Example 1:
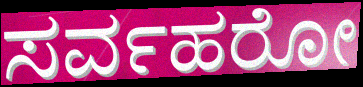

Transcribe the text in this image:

ಸರ್ವಹರೋ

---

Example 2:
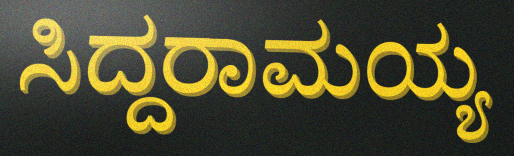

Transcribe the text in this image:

ಸಿದ್ದರಾಮಯ್ಯ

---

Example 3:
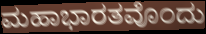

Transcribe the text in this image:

ಮಹಾಭಾರತವೊಂದು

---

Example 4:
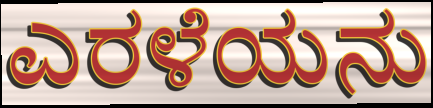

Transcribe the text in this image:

ಎರಳೆಯನು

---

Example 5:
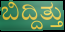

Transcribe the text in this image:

ಬಿದ್ದಿತ್ತು